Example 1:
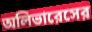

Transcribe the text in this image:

অলিভারেসের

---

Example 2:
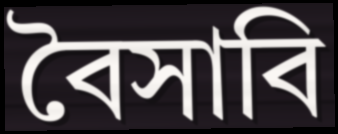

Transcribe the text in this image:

বৈসাবি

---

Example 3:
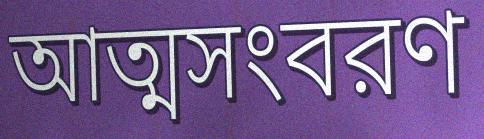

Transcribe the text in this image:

আত্মসংবরণ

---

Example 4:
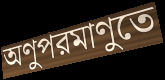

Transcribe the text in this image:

অণুপরমাণুতে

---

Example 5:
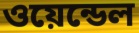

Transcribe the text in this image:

ওয়েন্ডেল